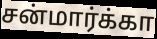
சன்மார்க்கா